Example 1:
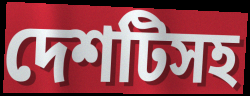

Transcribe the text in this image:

দেশটিসহ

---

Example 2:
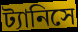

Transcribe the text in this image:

ট্যানিসে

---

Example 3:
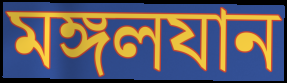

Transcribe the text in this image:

মঙ্গলযান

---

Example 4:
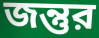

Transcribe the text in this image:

জন্তুর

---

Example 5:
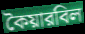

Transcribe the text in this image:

কৈয়ারবিল